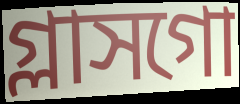
গ্লাসগো